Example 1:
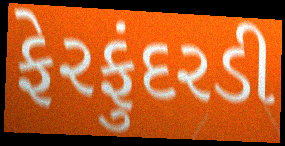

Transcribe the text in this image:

ફેરફુંદરડી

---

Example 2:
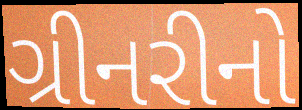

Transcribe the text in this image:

ગ્રીનરીનો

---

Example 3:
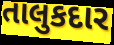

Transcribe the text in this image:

તાલુકદાર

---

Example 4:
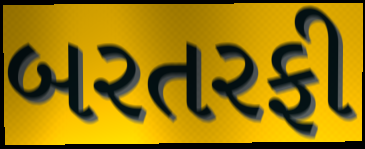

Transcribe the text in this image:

બરતરફી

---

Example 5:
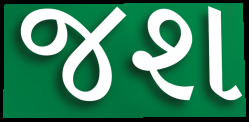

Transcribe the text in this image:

જશ